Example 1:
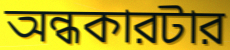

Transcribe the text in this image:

অন্ধকারটার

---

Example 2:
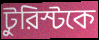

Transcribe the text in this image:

টুরিস্টকে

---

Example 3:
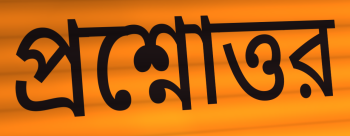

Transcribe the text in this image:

প্রশ্নোত্তর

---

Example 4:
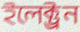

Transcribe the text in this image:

ইলেক্ট্রন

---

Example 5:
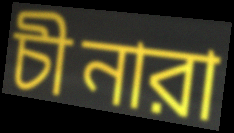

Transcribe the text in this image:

চীনারা